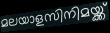
മലയാളസിനിമയ്ക്ക്